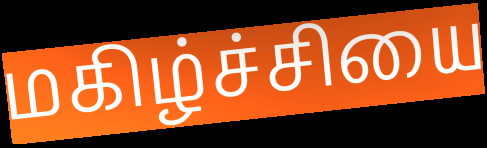
மகிழ்ச்சியை